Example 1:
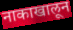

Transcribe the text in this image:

नाकाखालून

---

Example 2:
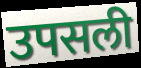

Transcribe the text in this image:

उपसली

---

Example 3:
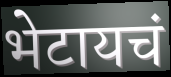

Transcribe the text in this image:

भेटायचं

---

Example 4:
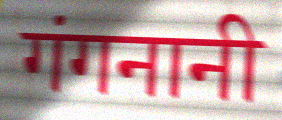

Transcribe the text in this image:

गंगनानी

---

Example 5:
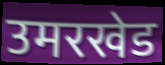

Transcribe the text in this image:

उमरखेड